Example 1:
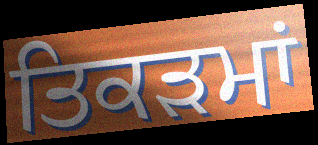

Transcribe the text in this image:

ਤਿਕੜਮਾਂ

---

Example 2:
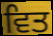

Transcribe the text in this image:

ਵਿਤ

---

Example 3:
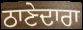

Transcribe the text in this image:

ਠਾਣੇਦਾਰਾ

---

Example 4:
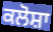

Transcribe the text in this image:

ਕਲੋਸ਼ਾ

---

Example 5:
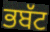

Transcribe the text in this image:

ਭਬੱਟ